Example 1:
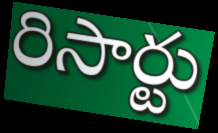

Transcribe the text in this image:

రిసార్టు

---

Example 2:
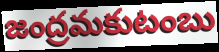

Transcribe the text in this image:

జంద్రమకుటంబు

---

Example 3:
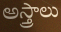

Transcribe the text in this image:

అస్త్రాలు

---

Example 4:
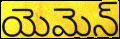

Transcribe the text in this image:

యెమెన్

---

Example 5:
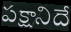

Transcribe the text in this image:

పక్షానిదే